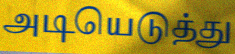
அடியெடுத்து